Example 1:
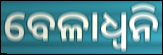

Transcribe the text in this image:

ବେଳାଧ୍ୱନି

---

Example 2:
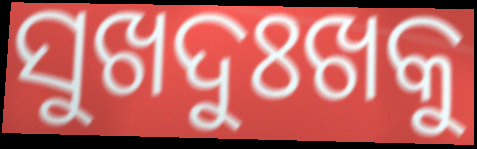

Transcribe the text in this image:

ସୁଖଦୁଃଖକୁ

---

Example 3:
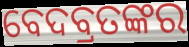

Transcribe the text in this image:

ବେଦବ୍ରତଙ୍କର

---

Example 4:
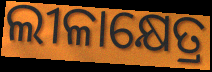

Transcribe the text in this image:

ଲୀଳାକ୍ଷେତ୍ର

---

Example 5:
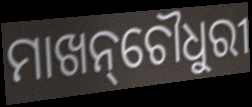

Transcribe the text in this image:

ମାଖନ୍‌ଚୌଧୁରୀ